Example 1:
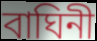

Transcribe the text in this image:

বাঘিনী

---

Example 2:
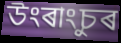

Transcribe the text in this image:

উংৰাংচুৰ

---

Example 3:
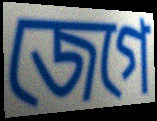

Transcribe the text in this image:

জেগে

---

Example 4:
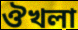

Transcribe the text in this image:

ঔখলা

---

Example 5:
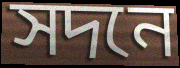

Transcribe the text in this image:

সদনে